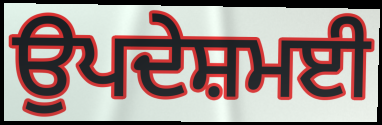
ਉਪਦੇਸ਼ਮਈ